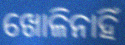
ଖୋଳିନାହିଁ